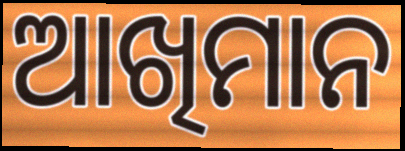
ଆଖିମାନ